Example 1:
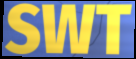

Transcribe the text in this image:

SWT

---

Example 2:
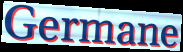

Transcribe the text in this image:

Germane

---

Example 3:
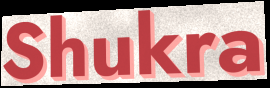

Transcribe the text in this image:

Shukra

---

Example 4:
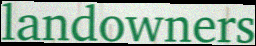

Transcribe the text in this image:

landowners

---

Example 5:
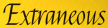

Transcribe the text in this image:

Extraneous